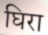
घिरा